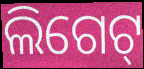
ଲିଗେଟ୍